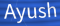
Ayush